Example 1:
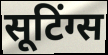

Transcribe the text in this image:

सूटिंग्स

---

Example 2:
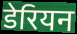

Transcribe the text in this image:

डेरियन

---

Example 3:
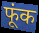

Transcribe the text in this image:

फूंक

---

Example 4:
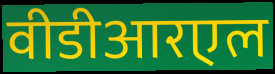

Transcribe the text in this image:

वीडीआरएल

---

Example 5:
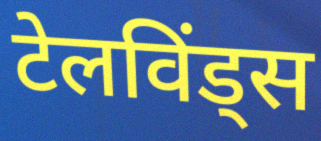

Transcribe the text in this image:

टेलविंड्स